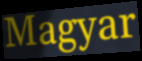
Magyar